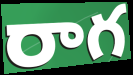
రాగ